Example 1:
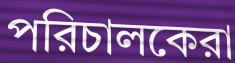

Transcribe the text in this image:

পরিচালকেরা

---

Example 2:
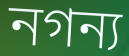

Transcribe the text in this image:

নগন্য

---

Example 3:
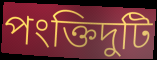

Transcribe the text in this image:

পংক্তিদুটি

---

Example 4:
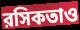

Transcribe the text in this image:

রসিকতাও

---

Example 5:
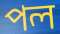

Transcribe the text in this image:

পল